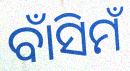
ବାଁସିମଁ